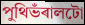
পুথিভঁৰালটো